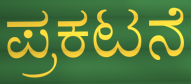
ಪ್ರಕಟನೆ